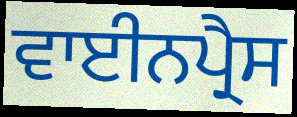
ਵਾਈਨਪ੍ਰੈਸ